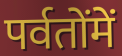
पर्वतोंमें